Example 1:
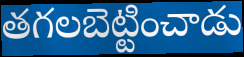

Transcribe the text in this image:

తగలబెట్టించాడు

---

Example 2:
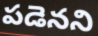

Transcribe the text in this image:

పడెనని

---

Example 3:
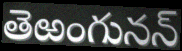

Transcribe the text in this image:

తెఱంగునన్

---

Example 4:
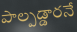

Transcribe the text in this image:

పాల్పడ్డారనే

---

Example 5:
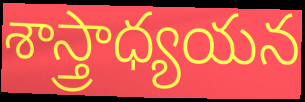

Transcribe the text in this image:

శాస్త్రాధ్యయన